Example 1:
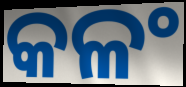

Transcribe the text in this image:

କଳଂ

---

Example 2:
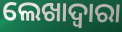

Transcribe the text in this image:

ଲେଖାଦ୍ୱାରା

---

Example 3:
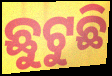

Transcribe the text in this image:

ଛୁଟୁଛି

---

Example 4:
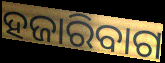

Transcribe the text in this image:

ହଜାରିବାଗ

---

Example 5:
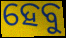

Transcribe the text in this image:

ହେବୁ